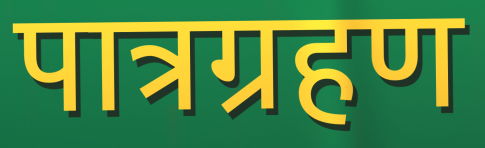
पात्रग्रहण